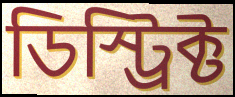
ডিস্ট্রিক্ট